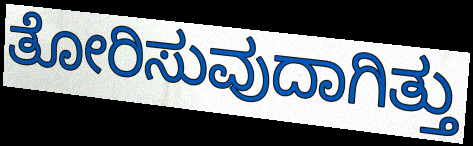
ತೋರಿಸುವುದಾಗಿತ್ತು